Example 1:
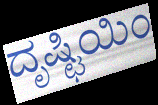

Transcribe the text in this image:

ದೃಷ್ಟಿಯಿಂ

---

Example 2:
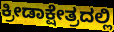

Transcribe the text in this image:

ಕ್ರೀಡಾಕ್ಷೇತ್ರದಲ್ಲಿ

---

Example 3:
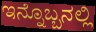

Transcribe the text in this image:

ಇನ್ನೊಬ್ಬನಲ್ಲಿ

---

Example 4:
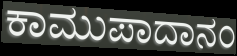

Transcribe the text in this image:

ಕಾಮುಪಾದಾನಂ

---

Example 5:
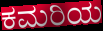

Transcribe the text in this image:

ಕಮರಿಯ